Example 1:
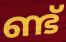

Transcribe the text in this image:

ണ്ട്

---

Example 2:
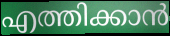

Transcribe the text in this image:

എത്തിക്കാൻ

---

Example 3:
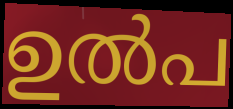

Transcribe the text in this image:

ഉൽപ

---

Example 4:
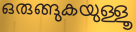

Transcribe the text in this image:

ഒരുങ്ങുകയുള്ളൂ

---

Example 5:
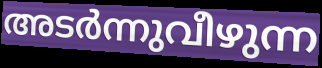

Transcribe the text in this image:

അടർന്നുവീഴുന്ന